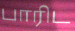
பாரிட